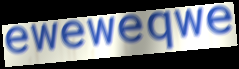
eweweqwe